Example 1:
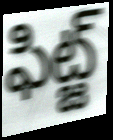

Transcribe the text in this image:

ఫిట్జ్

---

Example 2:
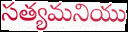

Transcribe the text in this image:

సత్యమనియు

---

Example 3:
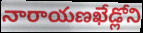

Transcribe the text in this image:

నారాయణఖేడ్లోని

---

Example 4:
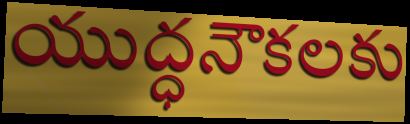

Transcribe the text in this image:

యుద్ధనౌకలకు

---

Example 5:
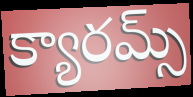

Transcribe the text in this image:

క్యారమ్స్